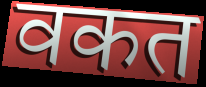
वकत